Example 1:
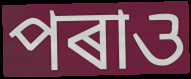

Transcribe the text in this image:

পৰাও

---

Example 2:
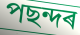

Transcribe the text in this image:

পছন্দৰ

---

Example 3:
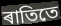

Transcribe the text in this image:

ৰাতিতে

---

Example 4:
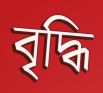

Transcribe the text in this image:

বৃদ্ধি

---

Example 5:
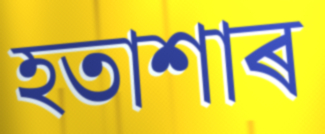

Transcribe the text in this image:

হতাশাৰ